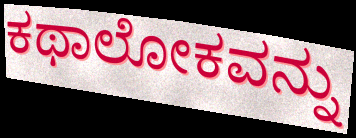
ಕಥಾಲೋಕವನ್ನು